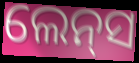
ଲେନ୍‍ସ